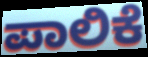
ಪಾಲಿಕೆ